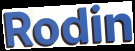
Rodin